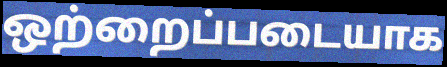
ஒற்றைப்படையாக